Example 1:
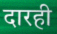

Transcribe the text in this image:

दारही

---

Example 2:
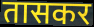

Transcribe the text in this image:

तासकर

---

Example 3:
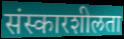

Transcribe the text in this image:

संस्कारशीलता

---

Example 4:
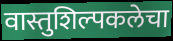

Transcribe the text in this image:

वास्तुशिल्पकलेचा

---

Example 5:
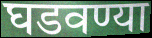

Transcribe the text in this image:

घडवण्या